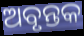
ଅବୃନ୍ତକ